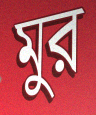
মুর